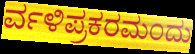
ರ್ವಳಿಪ್ರಕರಮಂದು